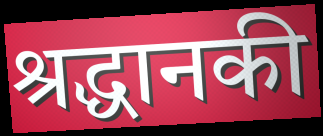
श्रद्धानकी